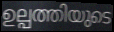
ഉല്പത്തിയുടെ